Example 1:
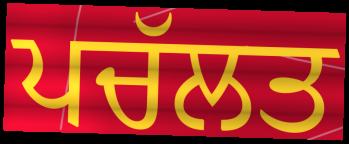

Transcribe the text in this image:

ਪਚੱਲਤ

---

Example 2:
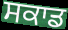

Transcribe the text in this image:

ਸਕਾਡ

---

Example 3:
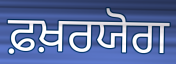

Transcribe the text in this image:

ਫ਼ਖ਼ਰਯੋਗ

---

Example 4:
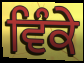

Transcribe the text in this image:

ਵਿੰਕੇ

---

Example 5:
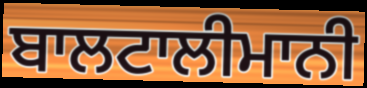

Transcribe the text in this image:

ਬਾਲਟਾਲੀਮਾਨੀ